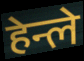
हेन्ले